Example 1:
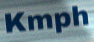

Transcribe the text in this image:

Kmph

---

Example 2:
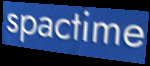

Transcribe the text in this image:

spactime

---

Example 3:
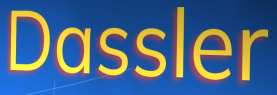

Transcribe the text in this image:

Dassler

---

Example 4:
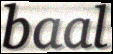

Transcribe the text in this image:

baal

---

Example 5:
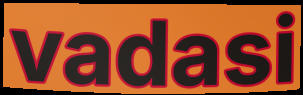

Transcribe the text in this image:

vadasi